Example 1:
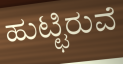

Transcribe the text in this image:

ಹುಟ್ಟಿರುವೆ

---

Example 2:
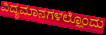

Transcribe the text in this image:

ವಿದ್ಯಮಾನಗಳಲ್ಲೊಂದು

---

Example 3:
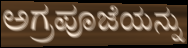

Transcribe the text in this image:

ಅಗ್ರಪೂಜೆಯನ್ನು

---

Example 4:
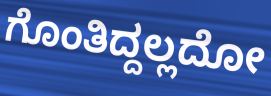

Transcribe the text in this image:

ಗೊಂತಿದ್ದಲ್ಲದೋ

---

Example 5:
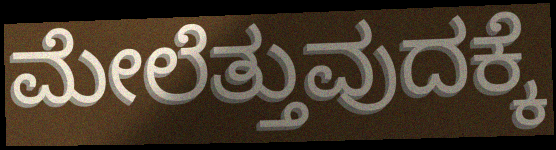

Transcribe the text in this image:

ಮೇಲೆತ್ತುವುದಕ್ಕೆ